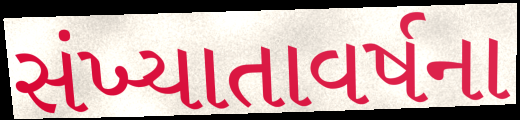
સંખ્યાતાવર્ષના